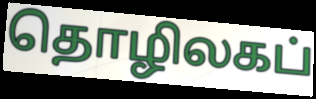
தொழிலகப்